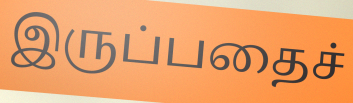
இருப்பதைச்